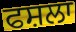
ਫਸ਼ਲਾ